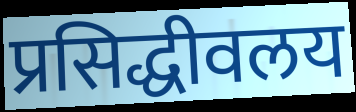
प्रसिद्धीवलय